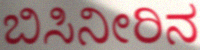
ಬಿಸಿನೀರಿನ